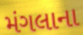
મંગલાના